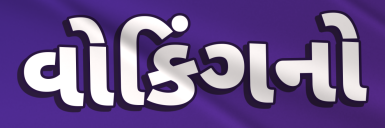
વોકિંગનો